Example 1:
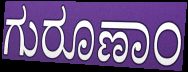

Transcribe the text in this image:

ಗುರೂಣಾಂ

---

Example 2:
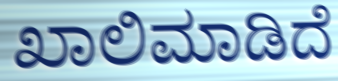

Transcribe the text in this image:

ಖಾಲಿಮಾಡಿದೆ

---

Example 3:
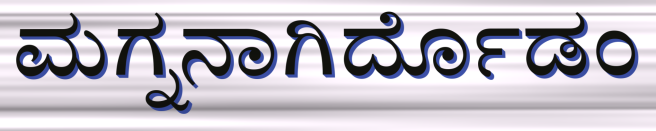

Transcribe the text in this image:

ಮಗ್ನನಾಗಿರ್ದೊಡಂ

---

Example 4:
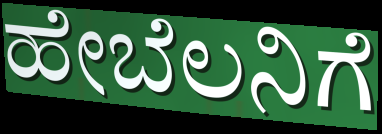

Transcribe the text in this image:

ಹೇಬೆಲನಿಗೆ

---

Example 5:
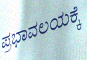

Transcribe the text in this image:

ಪ್ರಭಾವಲಯಕ್ಕೆ